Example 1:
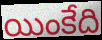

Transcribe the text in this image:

యింకేది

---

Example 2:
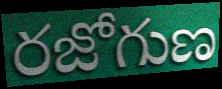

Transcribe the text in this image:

రజోగుణ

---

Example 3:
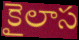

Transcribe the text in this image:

కైలాస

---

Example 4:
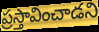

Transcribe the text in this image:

ప్రస్తావించాడని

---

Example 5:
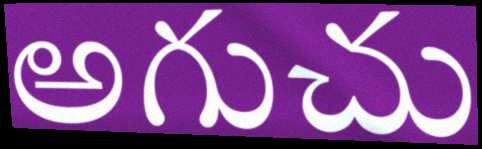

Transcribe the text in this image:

అగుచు